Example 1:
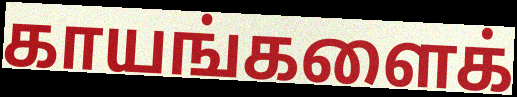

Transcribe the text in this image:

காயங்களைக்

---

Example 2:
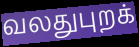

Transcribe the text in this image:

வலதுபுறக்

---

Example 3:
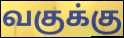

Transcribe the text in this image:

வகுக்கு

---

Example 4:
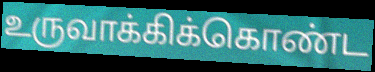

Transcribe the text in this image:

உருவாக்கிக்கொண்ட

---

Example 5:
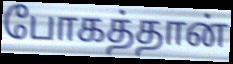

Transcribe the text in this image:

போகத்தான்